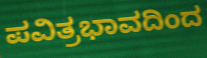
ಪವಿತ್ರಭಾವದಿಂದ